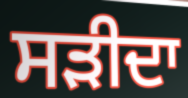
ਸੜੀਦਾ